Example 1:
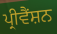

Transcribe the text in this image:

ਪ੍ਰੀਵੈਂਸ਼ਨ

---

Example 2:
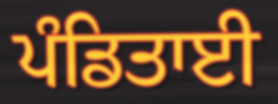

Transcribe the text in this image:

ਪੰਡਿਤਾਈ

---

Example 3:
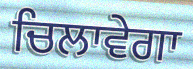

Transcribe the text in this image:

ਚਿਲਾਵੇਗਾ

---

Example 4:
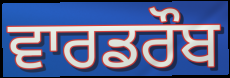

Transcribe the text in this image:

ਵਾਰਡਰੌਬ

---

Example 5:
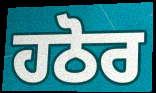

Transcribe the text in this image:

ਹਠੋਰ